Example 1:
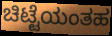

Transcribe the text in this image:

ಚಿಟ್ಟೆಯಂತಹ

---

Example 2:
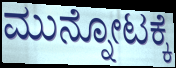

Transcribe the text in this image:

ಮುನ್ನೋಟಕ್ಕೆ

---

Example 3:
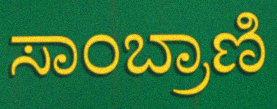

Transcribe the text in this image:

ಸಾಂಬ್ರಾಣಿ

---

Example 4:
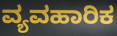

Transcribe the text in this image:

ವ್ಯವಹಾರಿಕ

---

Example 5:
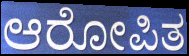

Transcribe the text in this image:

ಆರೋಪಿತ